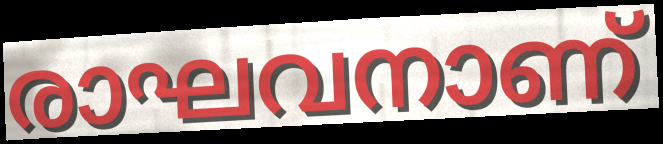
രാഘവനാണ്